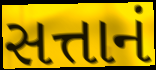
સત્તાનં